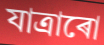
যাত্ৰাৰো